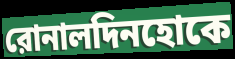
রোনালদিনহোকে